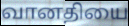
வானதியை